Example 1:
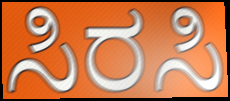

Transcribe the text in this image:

ಸಿರಸಿ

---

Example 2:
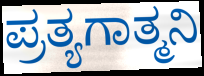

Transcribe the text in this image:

ಪ್ರತ್ಯಗಾತ್ಮನಿ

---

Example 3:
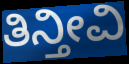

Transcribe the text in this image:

ತಿನ್ತೀವಿ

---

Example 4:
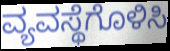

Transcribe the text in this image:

ವ್ಯವಸ್ಥೆಗೊಳಿಸಿ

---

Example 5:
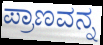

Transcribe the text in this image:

ಪ್ರಾಣವನ್ನ